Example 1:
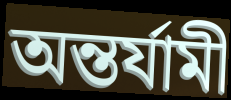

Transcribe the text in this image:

অন্তর্যামী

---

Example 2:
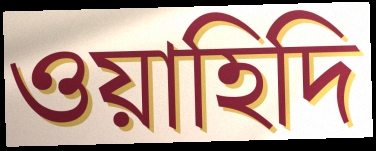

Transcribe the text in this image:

ওয়াহিদি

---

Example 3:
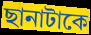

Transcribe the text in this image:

ছানাটাকে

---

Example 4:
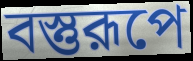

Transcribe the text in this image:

বস্তুরূপে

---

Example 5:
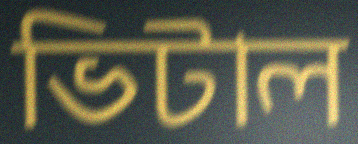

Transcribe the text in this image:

ভিটাল